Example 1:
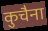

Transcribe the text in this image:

कुचैना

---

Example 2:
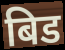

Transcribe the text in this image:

बिड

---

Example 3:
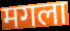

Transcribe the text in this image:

मगला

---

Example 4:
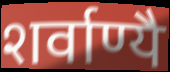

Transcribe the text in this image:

शर्वाण्यै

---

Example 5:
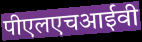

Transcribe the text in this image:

पीएलएचआईवी